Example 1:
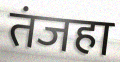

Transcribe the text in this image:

तंजहा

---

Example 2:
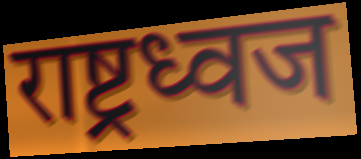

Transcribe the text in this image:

राष्ट्रध्वज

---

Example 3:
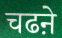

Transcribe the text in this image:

चढऩे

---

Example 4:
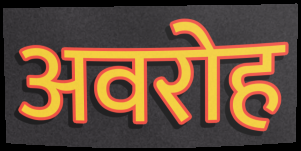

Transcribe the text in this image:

अवरोह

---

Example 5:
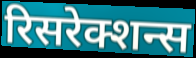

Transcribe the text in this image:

रिसरेक्शन्स